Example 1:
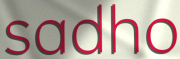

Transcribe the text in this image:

sadho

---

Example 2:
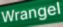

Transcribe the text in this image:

Wrangel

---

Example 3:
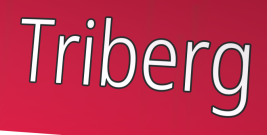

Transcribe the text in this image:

Triberg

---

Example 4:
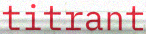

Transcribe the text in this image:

titrant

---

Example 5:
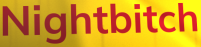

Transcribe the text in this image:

Nightbitch